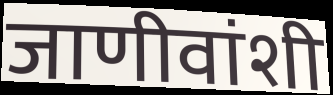
जाणीवांशी